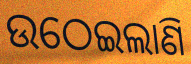
ଉଠେଇଲାଣି